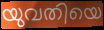
യുവതിയെ